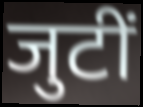
जुटीं